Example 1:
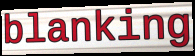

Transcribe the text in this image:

blanking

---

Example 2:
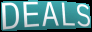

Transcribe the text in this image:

DEALS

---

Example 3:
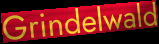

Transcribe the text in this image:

Grindelwald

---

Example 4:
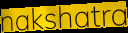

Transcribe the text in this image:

nakshatra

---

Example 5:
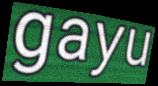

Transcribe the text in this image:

gayu